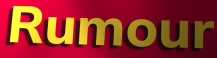
Rumour